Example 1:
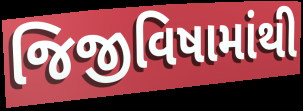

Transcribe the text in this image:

જિજીવિષામાંથી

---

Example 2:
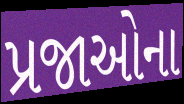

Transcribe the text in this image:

પ્રજાઓના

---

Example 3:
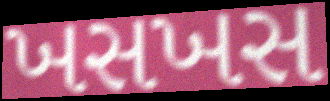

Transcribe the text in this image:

ખસખસ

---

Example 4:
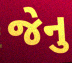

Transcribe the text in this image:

જેનુ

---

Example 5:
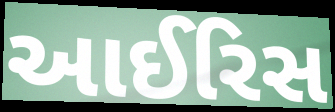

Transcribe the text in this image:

આઈરિસ